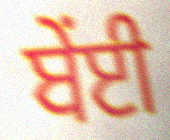
ਬੇਂਈ